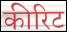
कीरिट